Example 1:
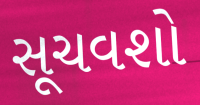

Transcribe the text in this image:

સૂચવશો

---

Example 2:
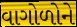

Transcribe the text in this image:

વાગોળોને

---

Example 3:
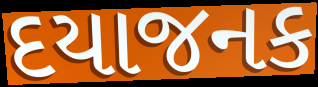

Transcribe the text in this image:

દયાજનક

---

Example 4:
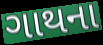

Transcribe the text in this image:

ગાથના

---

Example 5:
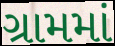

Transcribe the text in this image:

ગ્રામમાં